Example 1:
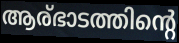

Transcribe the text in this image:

ആര്ഭാടത്തിന്റെ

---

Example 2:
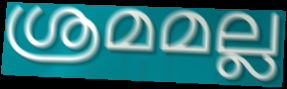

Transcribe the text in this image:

ശ്രമമല്ല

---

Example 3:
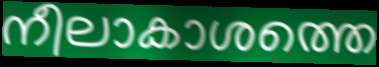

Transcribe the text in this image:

നീലാകാശത്തെ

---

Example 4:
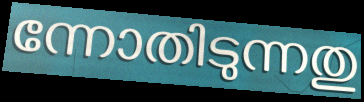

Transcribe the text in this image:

ന്നോതിടുന്നതു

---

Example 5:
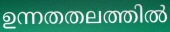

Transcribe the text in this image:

ഉന്നതതലത്തിൽ